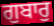
ਗੁਬਾਰੁ